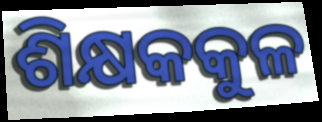
ଶିକ୍ଷକକୁଳ